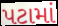
પટામાં